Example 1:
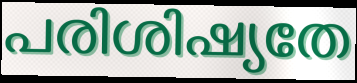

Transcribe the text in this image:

പരിശിഷ്യതേ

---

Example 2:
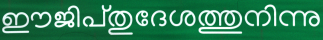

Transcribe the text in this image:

ഈജിപ്തുദേശത്തുനിന്നു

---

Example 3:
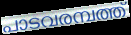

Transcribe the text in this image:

പാടവരമ്പത്ത്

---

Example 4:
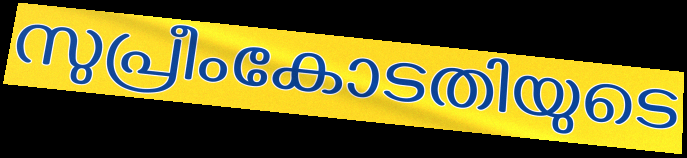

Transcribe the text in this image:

സുപ്രീംകോടതിയുടെ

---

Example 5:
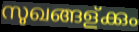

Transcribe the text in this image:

സുഖങ്ങള്ക്കും